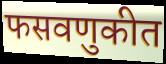
फसवणुकीत